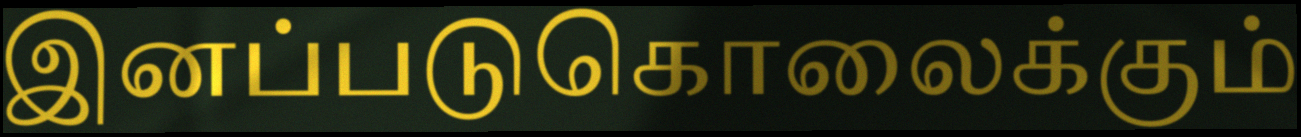
இனப்படுகொலைக்கும்